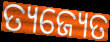
ତ୍ୟଜ୍ୟେତ